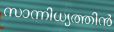
സാന്നിധ്യത്തിൻ